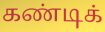
கண்டிக்